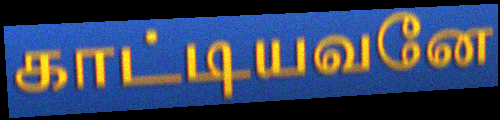
காட்டியவனே